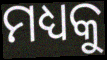
ମଧ୍ୟକୁ